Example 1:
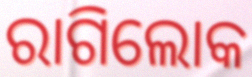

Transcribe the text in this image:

ରାଗିଲୋକ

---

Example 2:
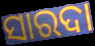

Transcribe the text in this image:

ସାରଦା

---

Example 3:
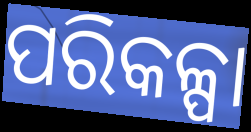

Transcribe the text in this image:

ପରିକଳ୍ପା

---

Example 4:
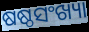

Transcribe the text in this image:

ଷଷ୍ଠସଂଖ୍ୟା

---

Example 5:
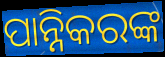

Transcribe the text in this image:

ପାନ୍ନିକରଙ୍କ